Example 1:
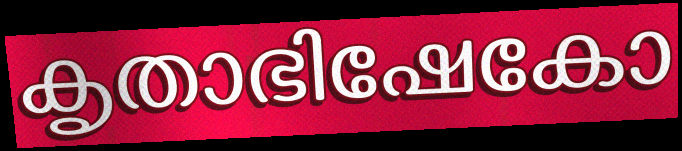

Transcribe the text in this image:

കൃതാഭിഷേകോ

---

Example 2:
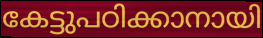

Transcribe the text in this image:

കേട്ടുപഠിക്കാനായി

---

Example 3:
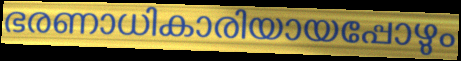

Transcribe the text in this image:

ഭരണാധികാരിയായപ്പോഴും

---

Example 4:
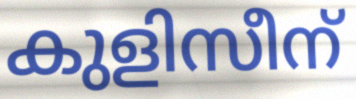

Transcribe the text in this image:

കുളിസീന്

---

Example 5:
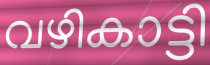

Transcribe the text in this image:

വഴികാട്ടി